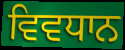
ਵਿਵਧਾਨ